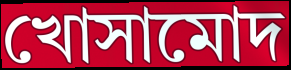
খোসামোদ